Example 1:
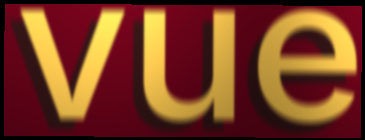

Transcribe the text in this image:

vue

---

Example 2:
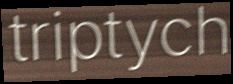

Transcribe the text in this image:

triptych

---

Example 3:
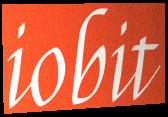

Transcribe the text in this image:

iobit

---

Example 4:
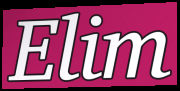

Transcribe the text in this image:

Elim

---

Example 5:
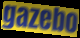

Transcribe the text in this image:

gazebo